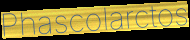
Phascolarctos